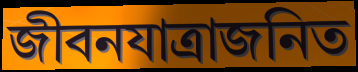
জীবনযাত্রাজনিত